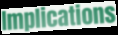
Implications